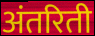
अंतरिती